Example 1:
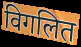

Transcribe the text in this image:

विगलित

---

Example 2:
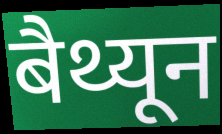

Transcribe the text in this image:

बैथ्यून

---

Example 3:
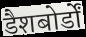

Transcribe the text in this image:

डैशबोर्डों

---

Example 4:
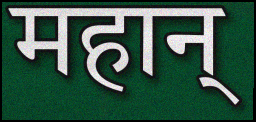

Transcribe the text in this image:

महान्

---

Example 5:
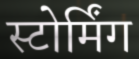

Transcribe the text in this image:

स्टोर्मिंग